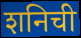
शनिची